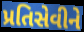
પ્રતિસેવીને